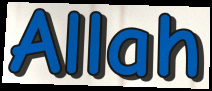
Allah